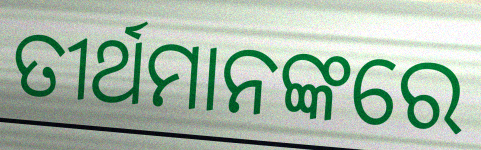
ତୀର୍ଥମାନଙ୍କରେ